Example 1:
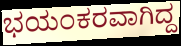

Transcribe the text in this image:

ಭಯಂಕರವಾಗಿದ್ದ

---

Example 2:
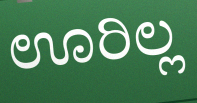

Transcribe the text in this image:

ಊರಿಲ್ಲ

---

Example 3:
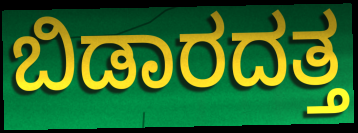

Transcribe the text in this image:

ಬಿಡಾರದತ್ತ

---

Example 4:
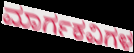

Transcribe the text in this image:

ಮಾರ್ಗಕವಿಗಳ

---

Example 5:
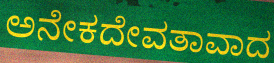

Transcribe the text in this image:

ಅನೇಕದೇವತಾವಾದ